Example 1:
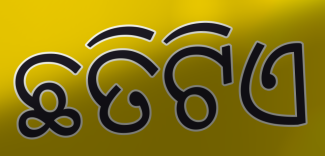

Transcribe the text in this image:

ଛତିଟିଏ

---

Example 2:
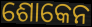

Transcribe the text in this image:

ଶୋକେନ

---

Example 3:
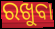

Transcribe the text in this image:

ରଖୁବା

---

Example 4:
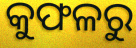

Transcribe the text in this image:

କୁଫଳରୁ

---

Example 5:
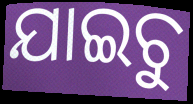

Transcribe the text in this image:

ଯାଇଚୁ